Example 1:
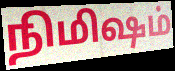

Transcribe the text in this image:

நிமிஷம்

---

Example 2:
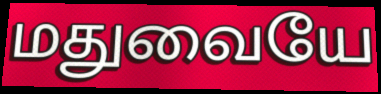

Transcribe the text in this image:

மதுவையே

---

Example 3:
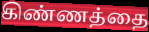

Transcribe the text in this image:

கிண்ணத்தை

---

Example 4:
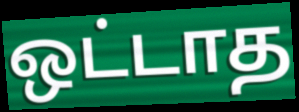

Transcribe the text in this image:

ஒட்டாத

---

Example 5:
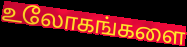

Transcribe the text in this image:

உலோகங்களை